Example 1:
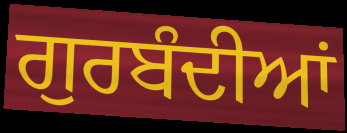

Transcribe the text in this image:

ਗੁਰਬੰਦੀਆਂ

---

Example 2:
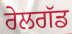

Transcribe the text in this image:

ਰੇਲਗੱਡ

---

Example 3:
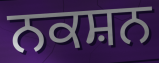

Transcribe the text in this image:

ਨਕਸ਼ਨ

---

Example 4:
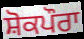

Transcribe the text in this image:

ਸ਼ੋਕਪੌਰਾ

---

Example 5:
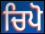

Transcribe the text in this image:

ਚਿਪੋ